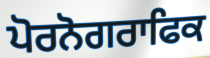
ਪੋਰਨੋਗਰਾਫਿਕ